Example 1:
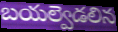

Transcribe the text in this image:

బయల్వెడలిన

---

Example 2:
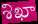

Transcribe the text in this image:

శిఖా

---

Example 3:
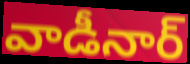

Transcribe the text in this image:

వాడీనార్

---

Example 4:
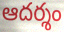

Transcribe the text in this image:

ఆదర్శం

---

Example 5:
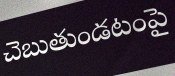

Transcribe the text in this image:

చెబుతుండటంపై